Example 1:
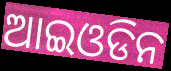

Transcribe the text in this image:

ଆଇଓଡିନ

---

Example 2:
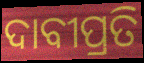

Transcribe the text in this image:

ଦାବୀପ୍ରତି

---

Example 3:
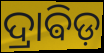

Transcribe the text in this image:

ଦ୍ରାଵିଡ଼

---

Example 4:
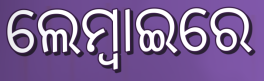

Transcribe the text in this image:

ଲେମ୍ବାଇରେ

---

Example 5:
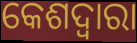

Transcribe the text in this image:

କେଶଦ୍ବାରା